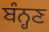
ਬੰਨ੍ਹਣ